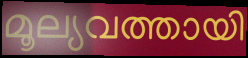
മൂല്യവത്തായി